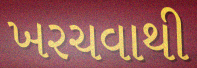
ખરચવાથી